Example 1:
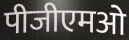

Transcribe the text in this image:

पीजीएमओ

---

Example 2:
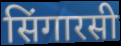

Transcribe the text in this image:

सिंगारसी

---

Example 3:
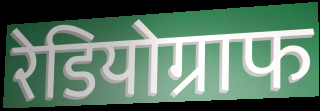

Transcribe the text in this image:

रेडियोग्राफ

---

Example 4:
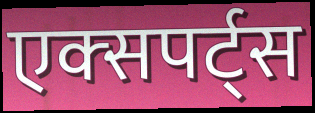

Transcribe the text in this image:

एक्‍सपर्ट्स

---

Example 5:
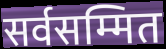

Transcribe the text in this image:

सर्वसम्मित